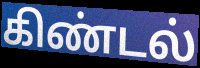
கிண்டல்